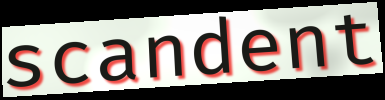
scandent